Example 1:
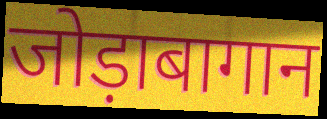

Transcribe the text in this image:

जोड़ाबागान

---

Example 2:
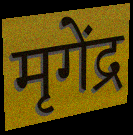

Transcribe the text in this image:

मृगेंद्र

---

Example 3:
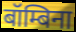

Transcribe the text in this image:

बॉम्बिना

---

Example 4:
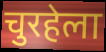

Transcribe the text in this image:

चुरहेला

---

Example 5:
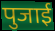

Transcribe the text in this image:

पुजाई